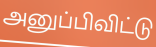
அனுப்பிவிட்டு